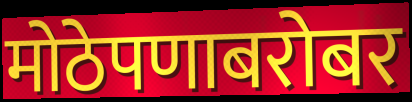
मोठेपणाबरोबर